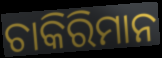
ଚାକିରିମାନ